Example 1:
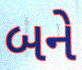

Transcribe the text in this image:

બને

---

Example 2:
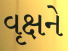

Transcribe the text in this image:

વૃક્ષને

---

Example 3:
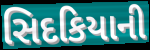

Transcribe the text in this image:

સિદકિયાની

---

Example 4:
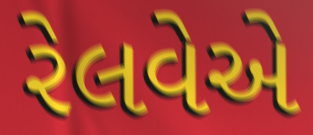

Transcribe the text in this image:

રેલવેએ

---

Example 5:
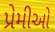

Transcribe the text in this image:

પ્રેમીઓ